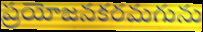
ప్రయోజనకరమగును